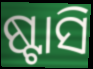
ଷ୍ଟାସି